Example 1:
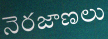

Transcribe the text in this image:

నెరజాణలు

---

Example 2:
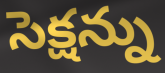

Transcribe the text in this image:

సెక్షన్ను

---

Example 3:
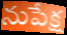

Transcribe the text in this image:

నుపేక్ష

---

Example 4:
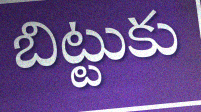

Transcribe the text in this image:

బిట్టుకు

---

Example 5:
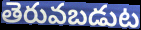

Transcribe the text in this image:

తెరువబడుట